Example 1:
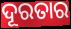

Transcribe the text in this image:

ଦୂରତାର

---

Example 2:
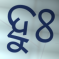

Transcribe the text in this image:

ହୁଃ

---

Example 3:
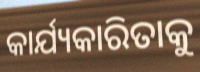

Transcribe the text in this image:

କାର୍ଯ୍ୟକାରିତାକୁ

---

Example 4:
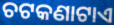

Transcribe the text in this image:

ଚଟକଣାଟାଏ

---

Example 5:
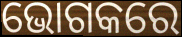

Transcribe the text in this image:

ଭୋଗକରେ